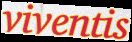
viventis